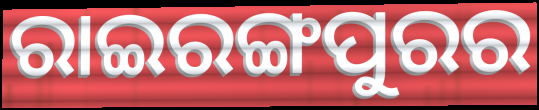
ରାଇରଙ୍ଗପୁରର